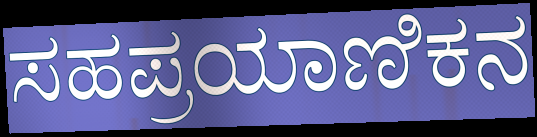
ಸಹಪ್ರಯಾಣಿಕನ